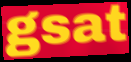
gsat